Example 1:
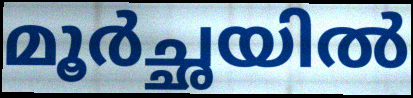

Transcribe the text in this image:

മൂർച്ഛയിൽ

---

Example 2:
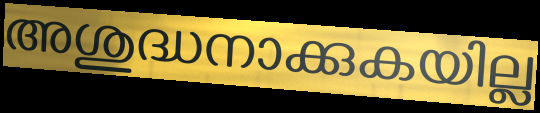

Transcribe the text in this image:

അശുദ്ധനാക്കുകയില്ല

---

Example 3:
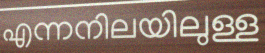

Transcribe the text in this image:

എന്നനിലയിലുള്ള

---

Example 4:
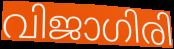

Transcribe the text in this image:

വിജാഗിരി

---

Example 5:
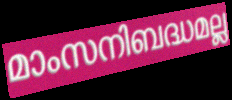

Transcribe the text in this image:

മാംസനിബദ്ധമല്ല